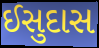
ઈસુદાસ